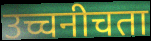
उच्चनीचता